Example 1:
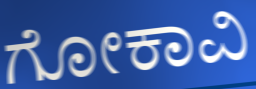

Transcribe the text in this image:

ಗೋಕಾವಿ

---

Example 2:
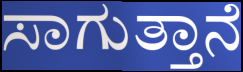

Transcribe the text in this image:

ಸಾಗುತ್ತಾನೆ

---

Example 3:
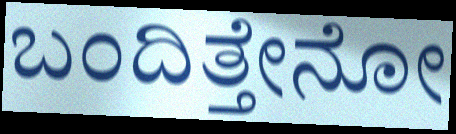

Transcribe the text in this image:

ಬಂದಿತ್ತೇನೋ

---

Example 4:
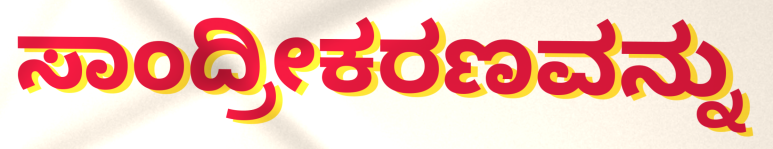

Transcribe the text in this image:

ಸಾಂದ್ರೀಕರಣವನ್ನು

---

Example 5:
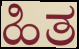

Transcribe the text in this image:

ಹಿತ